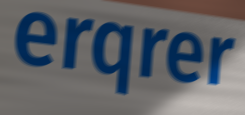
erqrer